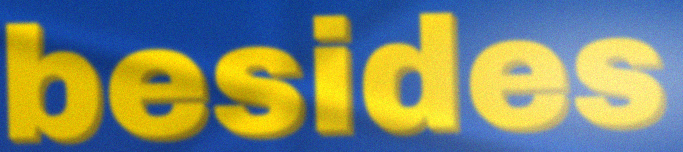
besides